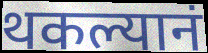
थकल्यानं